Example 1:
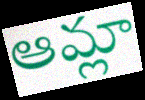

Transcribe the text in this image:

ఆమ్లా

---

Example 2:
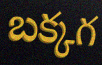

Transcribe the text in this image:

బక్కగ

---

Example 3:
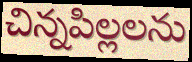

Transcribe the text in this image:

చిన్నపిల్లలను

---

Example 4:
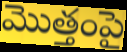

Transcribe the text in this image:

మొత్తంపై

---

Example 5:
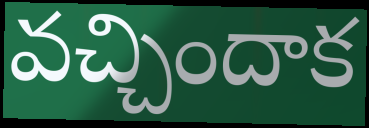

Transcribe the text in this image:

వచ్చిందాక